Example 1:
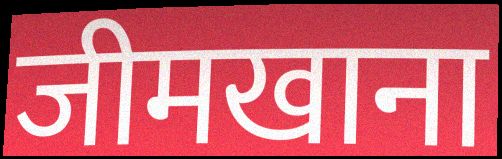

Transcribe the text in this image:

जीमखाना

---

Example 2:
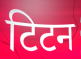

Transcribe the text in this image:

टिटन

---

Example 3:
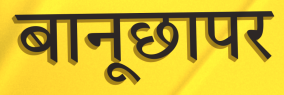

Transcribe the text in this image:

बानूछापर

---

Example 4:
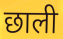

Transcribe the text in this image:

छाली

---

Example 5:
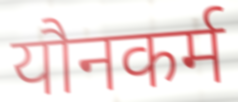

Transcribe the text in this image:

यौनकर्म